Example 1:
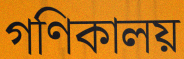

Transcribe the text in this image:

গণিকালয়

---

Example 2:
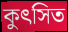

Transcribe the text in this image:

কুৎসিত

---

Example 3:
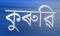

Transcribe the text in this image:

কুৰুৱি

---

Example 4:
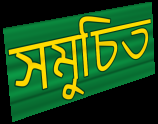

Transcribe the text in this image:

সমুচিত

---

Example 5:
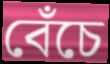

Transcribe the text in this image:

বেঁচে